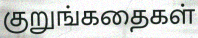
குறுங்கதைகள்